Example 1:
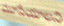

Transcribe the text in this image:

మూసేయాలని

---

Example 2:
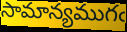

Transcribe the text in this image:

సామాన్యముగఁ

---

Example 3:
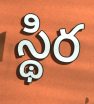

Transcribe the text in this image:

స్థిర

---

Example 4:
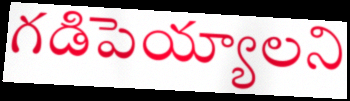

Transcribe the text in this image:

గడిపెయ్యాలని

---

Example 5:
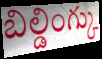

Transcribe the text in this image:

బిల్డింగ్కు